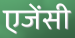
एजेंसी